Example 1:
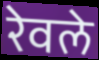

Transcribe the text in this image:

रेवले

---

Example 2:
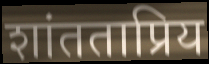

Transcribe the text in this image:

शांतताप्रिय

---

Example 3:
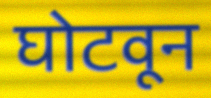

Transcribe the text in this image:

घोटवून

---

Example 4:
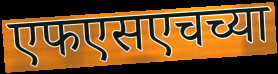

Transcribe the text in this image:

एफएसएचच्या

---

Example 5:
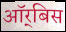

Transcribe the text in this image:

ऑर्बिस